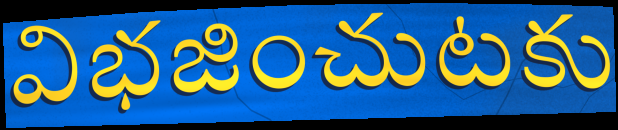
విభజించుటకు